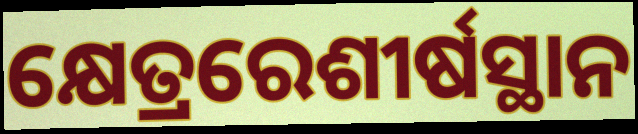
କ୍ଷେତ୍ରରେଶୀର୍ଷସ୍ଥାନ